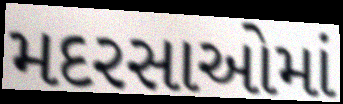
મદરસાઓમાં